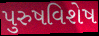
પુરુષવિશેષ